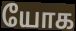
யோக